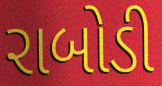
રાબોડી